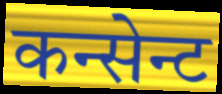
कन्सेन्ट